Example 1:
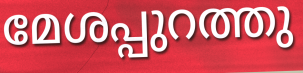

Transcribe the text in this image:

മേശപ്പുറത്തു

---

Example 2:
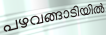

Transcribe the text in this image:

പഴവങ്ങാടിയിൽ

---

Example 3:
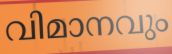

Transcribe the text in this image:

വിമാനവും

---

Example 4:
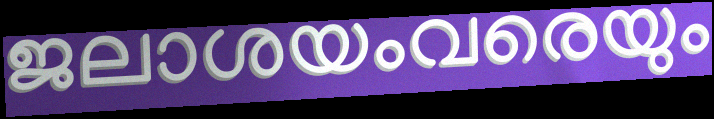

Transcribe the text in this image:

ജലാശയംവരെയും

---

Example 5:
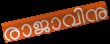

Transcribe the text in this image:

രാജാവിനു